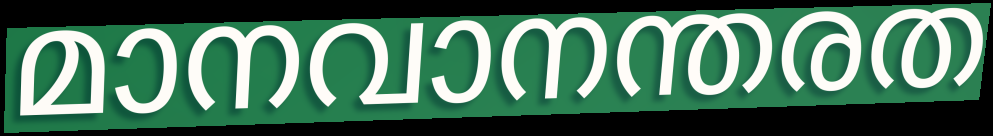
മാനവാനന്തരത